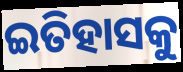
ଇତିହାସକୁ